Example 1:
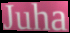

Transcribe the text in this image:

Juha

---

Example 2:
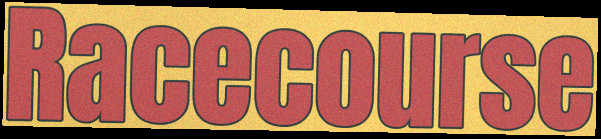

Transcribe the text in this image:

Racecourse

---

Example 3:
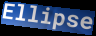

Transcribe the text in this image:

Ellipse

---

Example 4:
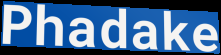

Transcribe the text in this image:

Phadake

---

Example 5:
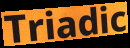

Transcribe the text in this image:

Triadic